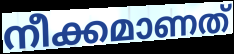
നീക്കമാണത്